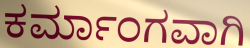
ಕರ್ಮಾಂಗವಾಗಿ